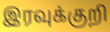
இரவுக்குறி